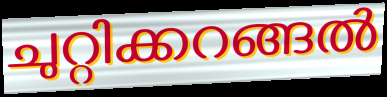
ചുറ്റിക്കറങ്ങൽ